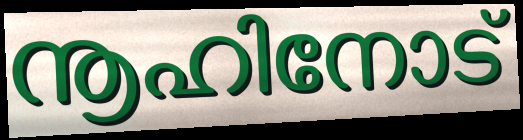
നൂഹിനോട്